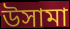
উসামা